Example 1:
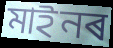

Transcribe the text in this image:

মাইনৰ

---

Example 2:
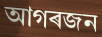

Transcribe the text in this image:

আগৰজন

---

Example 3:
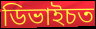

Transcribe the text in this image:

ডিভাইচত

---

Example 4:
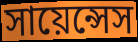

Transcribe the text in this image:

সায়েন্সেস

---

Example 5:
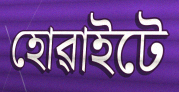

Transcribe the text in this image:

হোৱাইটে